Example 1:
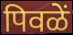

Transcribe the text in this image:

पिवळें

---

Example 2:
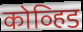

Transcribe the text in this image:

कोव्हिड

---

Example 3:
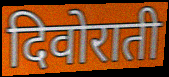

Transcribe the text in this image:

दिवोराती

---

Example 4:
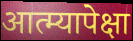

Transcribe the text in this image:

आत्म्यापेक्षा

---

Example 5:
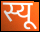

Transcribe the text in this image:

स्यू